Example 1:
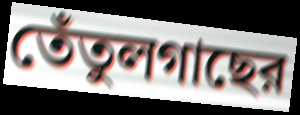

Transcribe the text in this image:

তেঁতুলগাছের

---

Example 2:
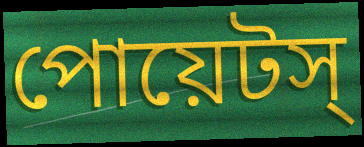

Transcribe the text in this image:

পোয়েটস্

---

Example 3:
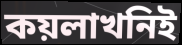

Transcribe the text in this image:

কয়লাখনিই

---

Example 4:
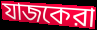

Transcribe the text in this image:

যাজকেরা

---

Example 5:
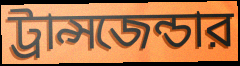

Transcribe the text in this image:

ট্রান্সজেন্ডার